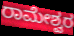
ರಾಮೇಶ್ವರ